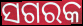
ସଗରକ